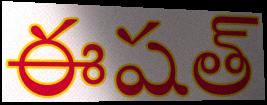
ఈషత్